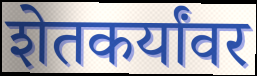
शेतकर्यांवर